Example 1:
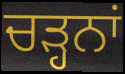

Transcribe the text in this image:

ਚੜ੍ਹਨਾਂ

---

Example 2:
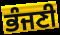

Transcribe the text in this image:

ਭੰਜਣੀ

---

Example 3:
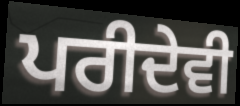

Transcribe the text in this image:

ਪਰੀਦੇਵੀ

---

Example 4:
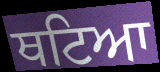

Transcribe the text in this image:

ਥਟਿਆ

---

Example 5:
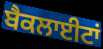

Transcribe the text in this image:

ਬੈਕਲਾਈਟਾਂ